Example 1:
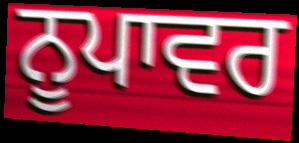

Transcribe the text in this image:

ਨੂਪਾਵਰ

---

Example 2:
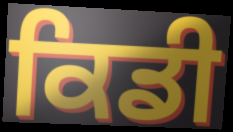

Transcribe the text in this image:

ਕਿਡੀ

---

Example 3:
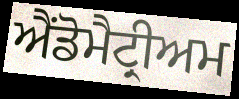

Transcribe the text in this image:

ਐਂਡੋਮੈਟ੍ਰੀਅਮ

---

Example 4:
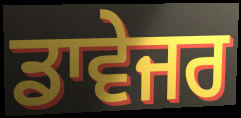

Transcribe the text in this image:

ਡਾਵੇਜਰ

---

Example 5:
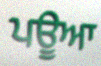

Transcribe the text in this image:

ਪਊਆ